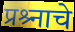
प्रश्र्नाचे